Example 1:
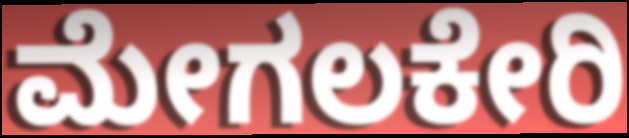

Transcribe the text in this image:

ಮೇಗಲಕೇರಿ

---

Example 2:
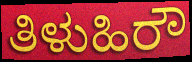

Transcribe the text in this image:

ತಿಳುಹಿರೌ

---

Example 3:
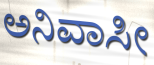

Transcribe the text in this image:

ಅನಿವಾಸೀ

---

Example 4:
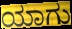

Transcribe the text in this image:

ಯಾಗು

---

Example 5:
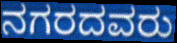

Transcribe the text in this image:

ನಗರದವರು